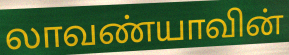
லாவண்யாவின்